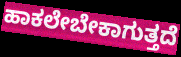
ಹಾಕಲೇಬೇಕಾಗುತ್ತದೆ